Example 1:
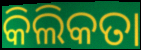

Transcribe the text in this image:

କିଲିକତା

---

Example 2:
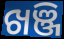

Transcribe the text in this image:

ଖଞ୍ଜି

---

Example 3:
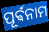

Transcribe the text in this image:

ପୂର୍ଵନାମ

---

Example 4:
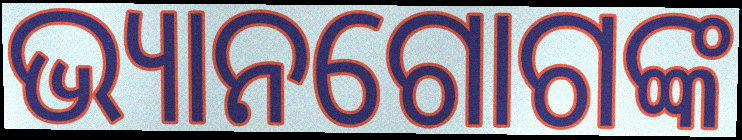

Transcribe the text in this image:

ଭ୍ୟାନଗୋଗଙ୍କ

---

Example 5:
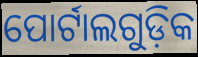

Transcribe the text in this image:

ପୋର୍ଟାଲଗୁଡ଼ିକ